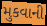
મુકવાની